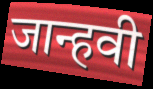
जान्हवी